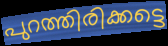
പുറത്തിരിക്കട്ടെ